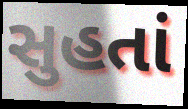
સુહતાં